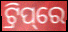
ଟ୍ରିପ୍‌ରେ